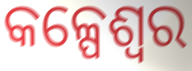
କଳ୍ପେଶ୍ୱର